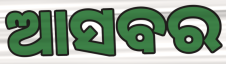
ଆସବର